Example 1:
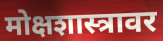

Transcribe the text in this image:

मोक्षशास्त्रावर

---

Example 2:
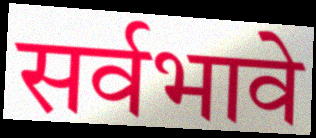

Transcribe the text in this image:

सर्वभावे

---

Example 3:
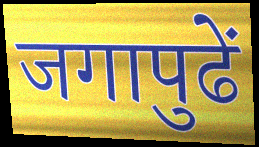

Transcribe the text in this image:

जगापुढें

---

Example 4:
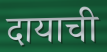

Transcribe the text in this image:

दायाची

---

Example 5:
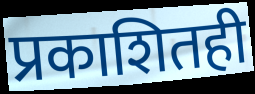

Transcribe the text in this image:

प्रकाशितही